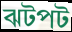
ঝটপট